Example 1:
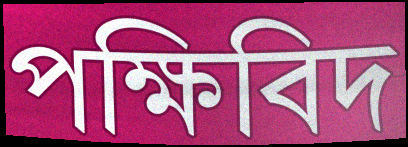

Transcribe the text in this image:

পক্ষিবিদ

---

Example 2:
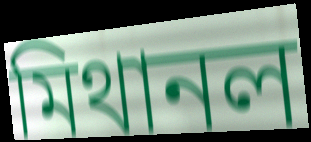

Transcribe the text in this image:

মিথানল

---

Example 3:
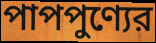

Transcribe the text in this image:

পাপপুণ্যের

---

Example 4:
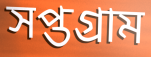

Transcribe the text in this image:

সপ্তগ্রাম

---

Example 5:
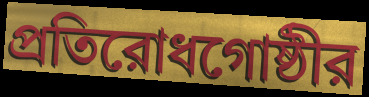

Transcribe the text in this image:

প্রতিরোধগোষ্ঠীর